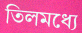
তিলমধ্যে